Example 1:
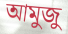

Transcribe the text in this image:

আমুজু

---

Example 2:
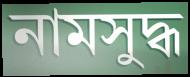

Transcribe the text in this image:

নামসুদ্ধ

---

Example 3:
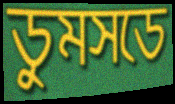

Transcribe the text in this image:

ডুমসডে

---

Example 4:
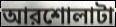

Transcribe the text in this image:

আরশোলাটা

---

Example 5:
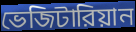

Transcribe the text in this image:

ভেজিটারিয়ান